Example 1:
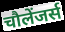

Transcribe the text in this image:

चौलेंजर्स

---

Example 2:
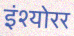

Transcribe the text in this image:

इंश्योरर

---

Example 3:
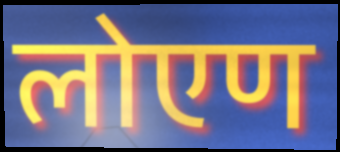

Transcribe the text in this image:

लोएण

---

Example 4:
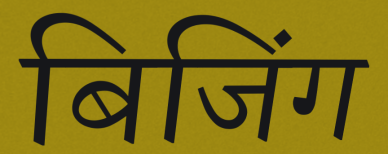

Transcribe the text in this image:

बिजिंग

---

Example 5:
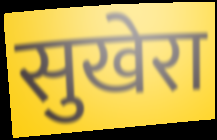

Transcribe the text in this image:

सुखेरा